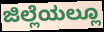
ಜಿಲ್ಲೆಯಲ್ಲೂ